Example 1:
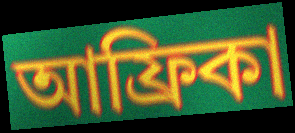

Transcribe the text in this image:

আফ্রিকা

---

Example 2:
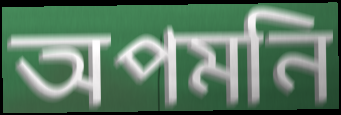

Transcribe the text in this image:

অপমনি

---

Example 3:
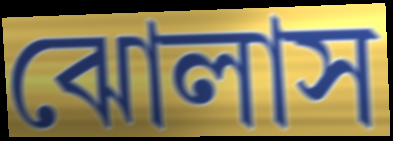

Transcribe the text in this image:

ঝোলাস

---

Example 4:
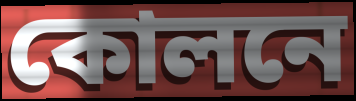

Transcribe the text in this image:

কোলনে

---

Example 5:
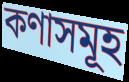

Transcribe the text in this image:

কণাসমূহ